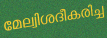
മേല്വിശദീകരിച്ച